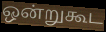
ஒன்றுகூட